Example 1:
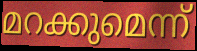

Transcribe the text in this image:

മറക്കുമെന്ന്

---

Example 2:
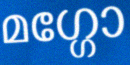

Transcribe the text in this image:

മഗ്ഗോ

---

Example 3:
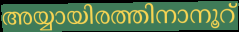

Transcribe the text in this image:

അയ്യായിരത്തിനാനൂറ്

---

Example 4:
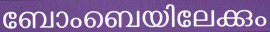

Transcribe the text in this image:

ബോംബെയിലേക്കും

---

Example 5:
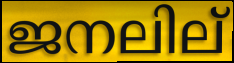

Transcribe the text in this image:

ജനലില്